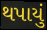
થપાયું